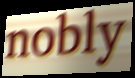
nobly